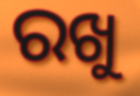
ରଖୁ